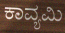
ಕಾವ್ಯಮಿ